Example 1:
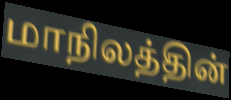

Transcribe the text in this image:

மாநிலத்தின்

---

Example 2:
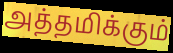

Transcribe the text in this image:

அத்தமிக்கும்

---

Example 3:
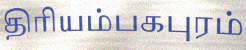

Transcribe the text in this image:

திரியம்பகபுரம்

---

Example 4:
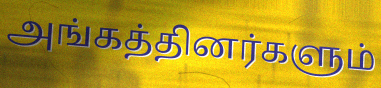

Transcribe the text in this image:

அங்கத்தினர்களும்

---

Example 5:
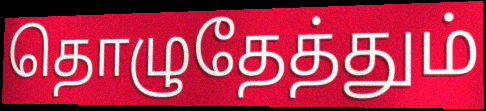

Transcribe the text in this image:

தொழுதேத்தும்